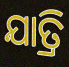
ଯାତ୍ରି